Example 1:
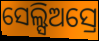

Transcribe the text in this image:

ସେଲ୍ସିଅସ୍ରେ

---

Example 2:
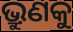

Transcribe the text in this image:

ଭ୍ରୁଣକୁ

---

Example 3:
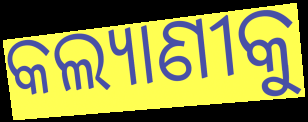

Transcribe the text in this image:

କଲ୍ୟାଣୀକୁ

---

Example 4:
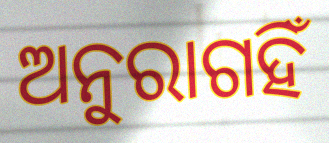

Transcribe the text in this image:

ଅନୁରାଗହିଁ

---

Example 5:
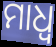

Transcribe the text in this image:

ମାଧ୍ଵ